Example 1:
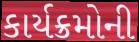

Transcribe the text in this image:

કાર્યક્રમોની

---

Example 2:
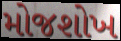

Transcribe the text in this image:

મોજશોખ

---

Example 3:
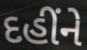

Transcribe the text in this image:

દહીંને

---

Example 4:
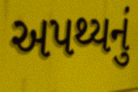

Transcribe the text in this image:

અપથ્યનું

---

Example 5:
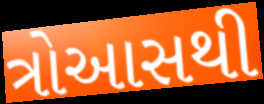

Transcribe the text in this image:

ત્રોઆસથી